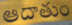
ఆదాతుం